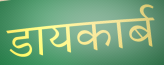
डायकार्ब